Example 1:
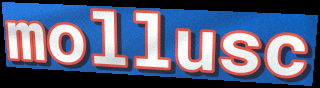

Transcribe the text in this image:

mollusc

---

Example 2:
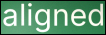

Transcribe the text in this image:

aligned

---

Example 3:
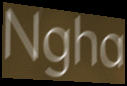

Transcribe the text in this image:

Ngha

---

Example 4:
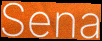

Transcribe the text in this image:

Sena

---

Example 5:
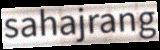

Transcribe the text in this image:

sahajrang